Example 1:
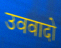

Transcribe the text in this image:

उववादो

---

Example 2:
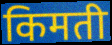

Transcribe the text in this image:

किमती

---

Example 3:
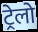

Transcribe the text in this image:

ट्रेलो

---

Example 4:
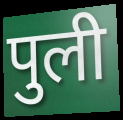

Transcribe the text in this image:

पुली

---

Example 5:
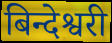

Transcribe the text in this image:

बिन्देश्वरी